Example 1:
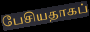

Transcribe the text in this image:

பேசியதாகப்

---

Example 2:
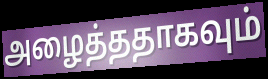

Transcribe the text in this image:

அழைத்ததாகவும்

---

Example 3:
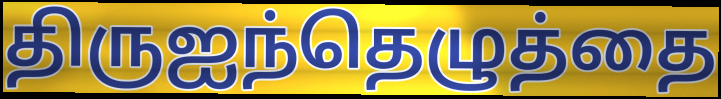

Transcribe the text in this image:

திருஐந்தெழுத்தை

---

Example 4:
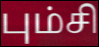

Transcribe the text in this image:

பும்சி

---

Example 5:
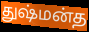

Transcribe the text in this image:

துஷ்மன்த